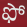
ఫో